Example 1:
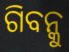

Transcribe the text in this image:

ଗିବନ୍କୁ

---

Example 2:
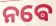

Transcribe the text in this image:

ନଵେ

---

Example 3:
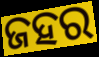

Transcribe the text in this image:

ଜହର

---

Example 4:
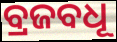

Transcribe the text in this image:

ବ୍ରଜବଧୂ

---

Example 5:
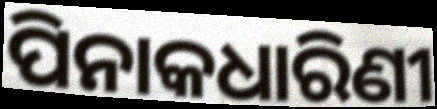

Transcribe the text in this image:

ପିନାକଧାରିଣୀ